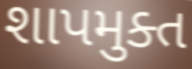
શાપમુક્ત